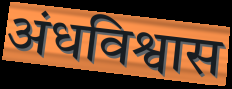
अंधविश्वास